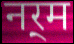
नर्म